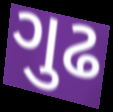
ગુઢ